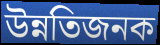
উন্নতিজনক